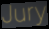
Jury